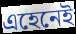
এহেনেই